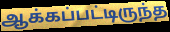
ஆக்கப்பட்டிருந்த